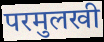
परमुलखी